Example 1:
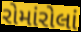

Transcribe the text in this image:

રોમાંરોલાં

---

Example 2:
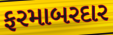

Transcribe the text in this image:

ફરમાબરદાર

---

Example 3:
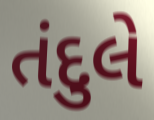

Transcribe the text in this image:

તંદુલે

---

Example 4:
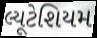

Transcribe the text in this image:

લ્યૂટેશિયમ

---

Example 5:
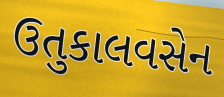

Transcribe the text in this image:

ઉતુકાલવસેન